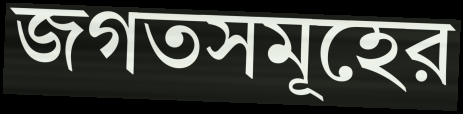
জগতসমূহের